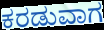
ಕರಡುವಾಗ